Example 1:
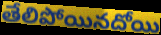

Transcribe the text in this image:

తేలిపోయినదోయి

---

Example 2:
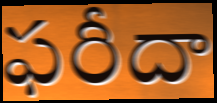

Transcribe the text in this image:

ఫరీదా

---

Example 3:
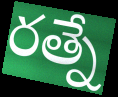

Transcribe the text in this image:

రత్నే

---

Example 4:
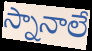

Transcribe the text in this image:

స్నానాలే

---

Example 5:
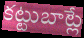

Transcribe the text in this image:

కట్టుబాట్లే